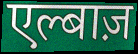
एल्बाज़